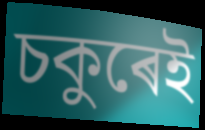
চকুৰেই